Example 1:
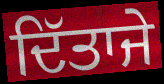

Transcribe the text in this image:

ਦਿੱਤਾਜੇ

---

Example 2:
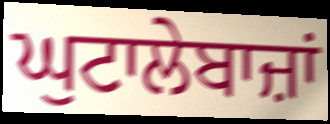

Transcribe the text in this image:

ਘੁਟਾਲੇਬਾਜ਼ਾਂ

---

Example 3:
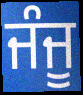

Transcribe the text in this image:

ਜੰਜੂ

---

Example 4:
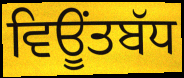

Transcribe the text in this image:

ਵਿਊਂਤਬੱਧ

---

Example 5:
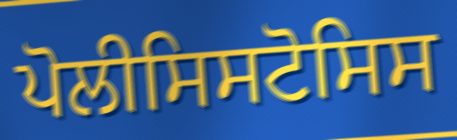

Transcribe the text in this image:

ਪੋਲੀਸਿਸਟੋਸਿਸ